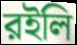
রইলি